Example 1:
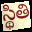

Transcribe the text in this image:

స్థితి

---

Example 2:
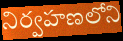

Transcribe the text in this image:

నిర్వహణలోని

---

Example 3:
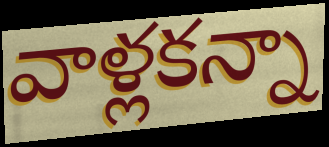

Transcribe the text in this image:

వాళ్లకన్నా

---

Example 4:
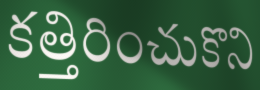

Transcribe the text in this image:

కత్తిరించుకొని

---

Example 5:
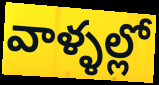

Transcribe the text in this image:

వాళ్ళల్లో